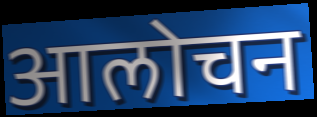
आलोचन